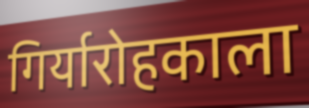
गिर्यारोहकाला